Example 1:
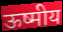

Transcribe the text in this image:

ऊष्मीय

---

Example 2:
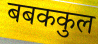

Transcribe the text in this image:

बबककुल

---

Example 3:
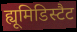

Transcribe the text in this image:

ह्यूमिडिस्टैट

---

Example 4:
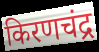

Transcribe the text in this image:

किरणचंद्र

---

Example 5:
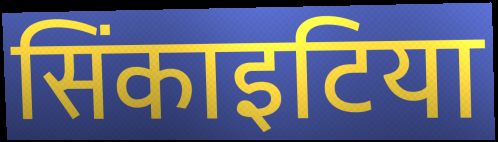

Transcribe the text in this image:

सिंकाइटिया